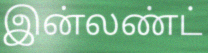
இன்லண்ட்